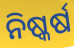
ନିଷ୍କର୍ଷ